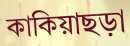
কাকিয়াছড়া